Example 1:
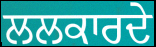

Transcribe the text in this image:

ਲਲਕਾਰਦੇ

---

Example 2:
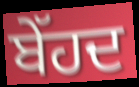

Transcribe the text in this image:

ਬੇੱਹਦ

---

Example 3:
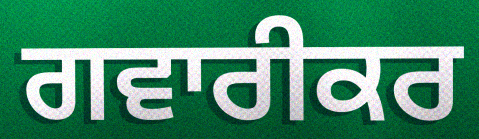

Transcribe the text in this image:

ਗਵਾਰੀਕਰ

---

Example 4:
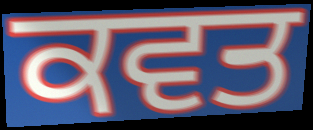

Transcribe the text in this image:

ਕਵਤ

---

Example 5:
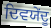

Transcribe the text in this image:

ਦਿਵਯੇਂਦੂ